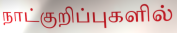
நாட்குறிப்புகளில்